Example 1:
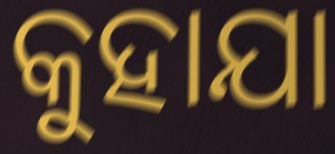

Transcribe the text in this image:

କୁହାଯା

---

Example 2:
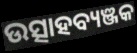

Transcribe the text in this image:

ଉତ୍ସାହବ୍ୟଞ୍ଜକ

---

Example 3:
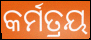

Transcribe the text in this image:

କର୍ମତ୍ରୟ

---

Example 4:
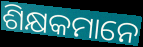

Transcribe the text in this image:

ଶିକ୍ଷକମାନେ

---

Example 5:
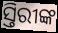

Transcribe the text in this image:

ସ୍ତିରୀଙ୍କ